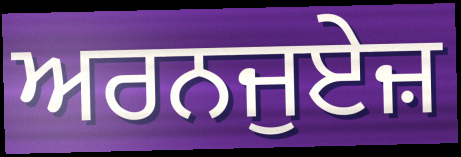
ਅਰਨਜੁਏਜ਼